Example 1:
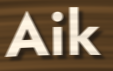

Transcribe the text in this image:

Aik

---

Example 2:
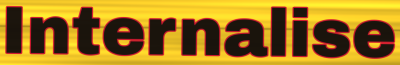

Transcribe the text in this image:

Internalise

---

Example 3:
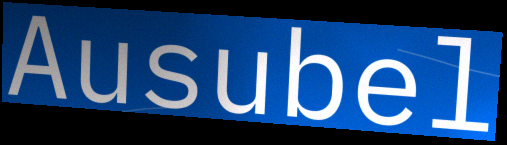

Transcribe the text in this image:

Ausubel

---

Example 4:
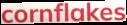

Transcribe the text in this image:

cornflakes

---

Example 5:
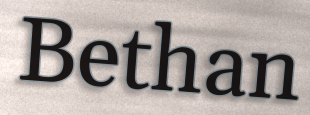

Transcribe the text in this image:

Bethan